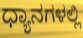
ಧ್ಯಾನಗಳಲ್ಲಿ